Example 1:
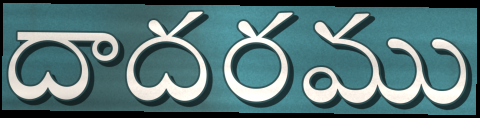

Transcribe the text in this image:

దాదరము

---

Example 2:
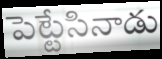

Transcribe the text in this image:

పెట్టేసినాడు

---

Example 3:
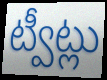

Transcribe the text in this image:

ట్వీట్లు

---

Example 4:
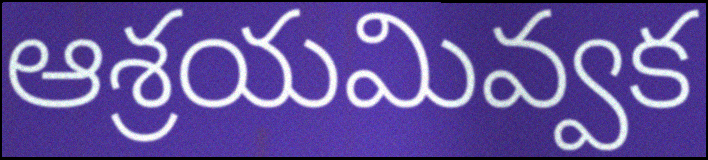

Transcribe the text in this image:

ఆశ్రయమివ్వక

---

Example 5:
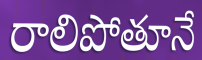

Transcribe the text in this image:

రాలిపోతూనే